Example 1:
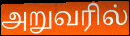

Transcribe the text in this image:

அறுவரில்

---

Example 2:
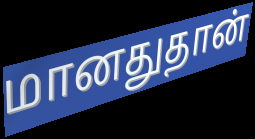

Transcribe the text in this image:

மானதுதான்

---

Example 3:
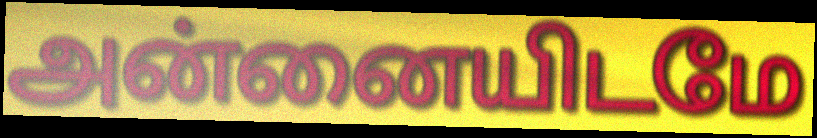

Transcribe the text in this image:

அன்னையிடமே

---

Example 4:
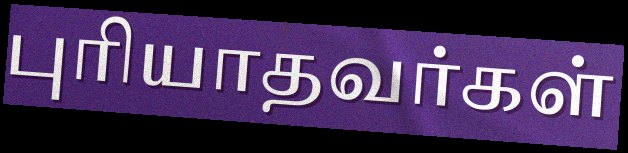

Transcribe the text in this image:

புரியாதவர்கள்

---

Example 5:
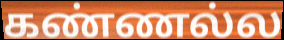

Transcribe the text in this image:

கண்ணல்ல